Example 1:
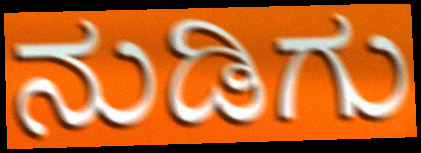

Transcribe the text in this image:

ನುಡಿಗು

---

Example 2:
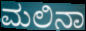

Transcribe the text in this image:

ಮಲಿನಾ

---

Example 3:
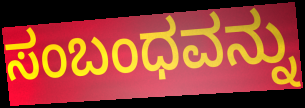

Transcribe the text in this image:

ಸಂಬಂಧವನ್ನು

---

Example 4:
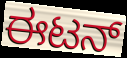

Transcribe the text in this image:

ಈಟನ್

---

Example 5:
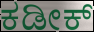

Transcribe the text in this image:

ಕಡೀಕ್